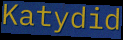
Katydid